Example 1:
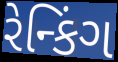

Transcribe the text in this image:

રેન્કિંગ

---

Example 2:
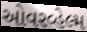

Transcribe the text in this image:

ઓવરવ્હેલ્મ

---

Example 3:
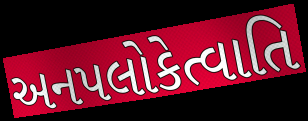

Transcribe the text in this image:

અનપલોકેત્વાતિ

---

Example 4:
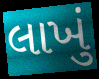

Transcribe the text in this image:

લાખું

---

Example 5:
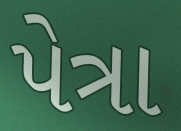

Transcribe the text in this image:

પેત્રા